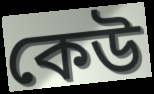
কেউ